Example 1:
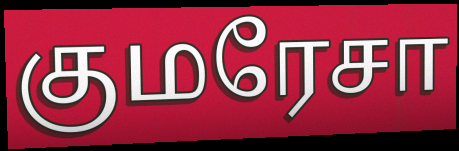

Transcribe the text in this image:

குமரேசா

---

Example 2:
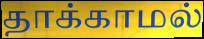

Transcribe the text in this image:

தாக்காமல்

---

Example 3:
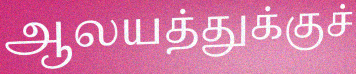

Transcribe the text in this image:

ஆலயத்துக்குச்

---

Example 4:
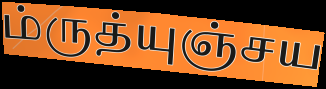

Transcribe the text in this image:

ம்ருத்யுஞ்சய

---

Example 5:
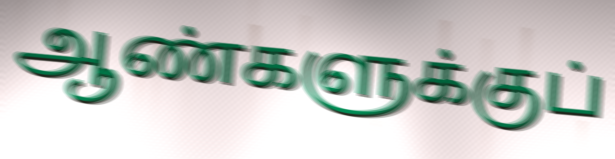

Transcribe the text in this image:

ஆண்களுக்குப்